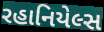
રહાનિયેલ્સ